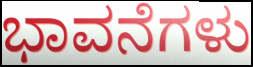
ಭಾವನೆಗಳು